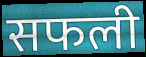
सफली